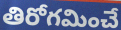
తిరోగమించే